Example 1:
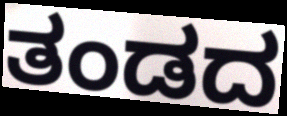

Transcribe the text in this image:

ತಂಡದ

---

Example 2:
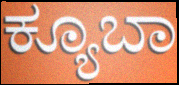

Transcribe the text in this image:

ಕ್ಯೂಬಾ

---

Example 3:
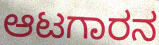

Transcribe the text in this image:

ಆಟಗಾರನ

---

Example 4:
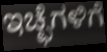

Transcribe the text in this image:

ಇಚ್ಛೆಗಳಿಗೆ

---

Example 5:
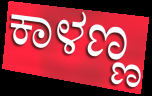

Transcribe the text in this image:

ಕಾಳಣ್ಣ